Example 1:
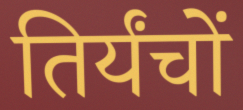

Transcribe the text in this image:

तिर्यंचों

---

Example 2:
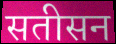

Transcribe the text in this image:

सतीसन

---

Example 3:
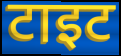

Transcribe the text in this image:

टाइट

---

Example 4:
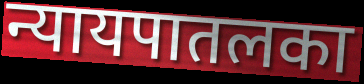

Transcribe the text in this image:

न्यायपातलका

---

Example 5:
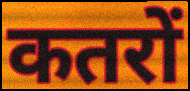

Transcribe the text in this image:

कतरों